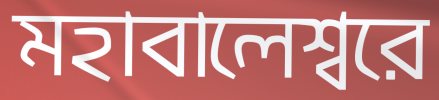
মহাবালেশ্বরে